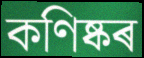
কণিষ্কৰ